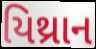
યિથ્રાન